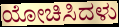
ಯೋಚಿಸಿದಳು